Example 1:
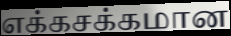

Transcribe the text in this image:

எக்கசக்கமான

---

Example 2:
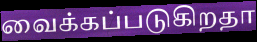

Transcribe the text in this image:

வைக்கப்படுகிறதா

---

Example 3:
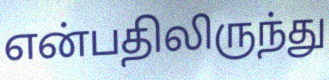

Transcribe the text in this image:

என்பதிலிருந்து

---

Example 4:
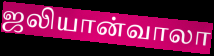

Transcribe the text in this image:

ஜலியான்வாலா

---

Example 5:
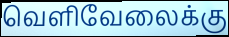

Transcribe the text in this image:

வெளிவேலைக்கு